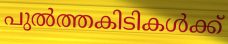
പുൽത്തകിടികൾക്ക്